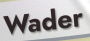
Wader